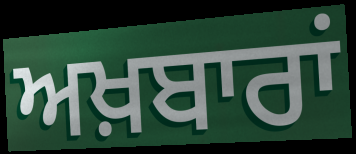
ਅਖ਼ਬਾਰਾਂ